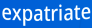
expatriate